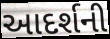
આદર્શની